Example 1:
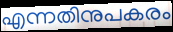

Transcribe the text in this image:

എന്നതിനുപകരം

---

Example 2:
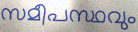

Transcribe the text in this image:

സമീപസ്ഥവും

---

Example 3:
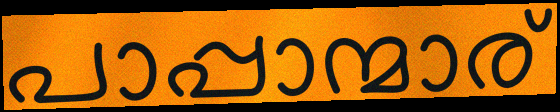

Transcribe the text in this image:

പാപ്പാന്മാര്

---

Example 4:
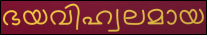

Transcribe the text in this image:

ഭയവിഹ്വലമായ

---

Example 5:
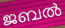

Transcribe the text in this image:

ജബൽ